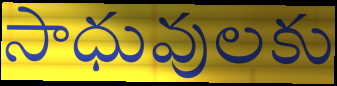
సాధువులకు